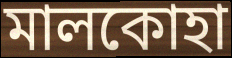
মালকোহা